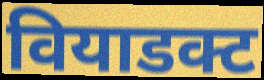
वियाडक्ट